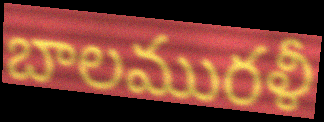
బాలమురళీ